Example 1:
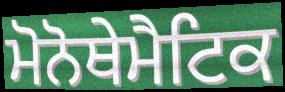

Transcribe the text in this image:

ਮੋਨੋਥੇਮੈਟਿਕ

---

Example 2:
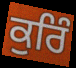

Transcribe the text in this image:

ਕੁਰਿੰ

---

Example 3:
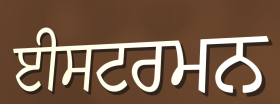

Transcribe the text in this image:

ਈਸਟਰਮਨ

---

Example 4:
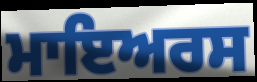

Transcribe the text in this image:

ਮਾਇਅਰਸ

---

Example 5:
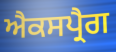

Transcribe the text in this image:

ਐਕਸਪ੍ਰੈਗ